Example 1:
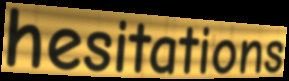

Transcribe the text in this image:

hesitations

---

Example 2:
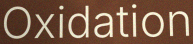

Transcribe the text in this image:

Oxidation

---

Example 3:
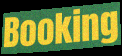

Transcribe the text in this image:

Booking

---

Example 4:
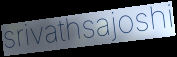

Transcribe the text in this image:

srivathsajoshi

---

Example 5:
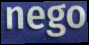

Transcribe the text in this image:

nego